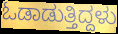
ಓಡಾಡುತ್ತಿದ್ದಳು